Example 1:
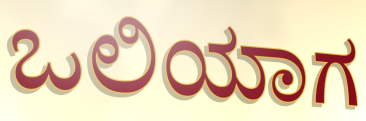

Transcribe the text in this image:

ಒಲಿಯಾಗ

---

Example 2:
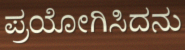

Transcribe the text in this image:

ಪ್ರಯೋಗಿಸಿದನು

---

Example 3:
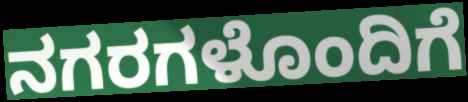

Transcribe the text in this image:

ನಗರಗಳೊಂದಿಗೆ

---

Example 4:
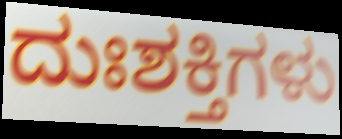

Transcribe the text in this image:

ದುಃಶಕ್ತಿಗಳು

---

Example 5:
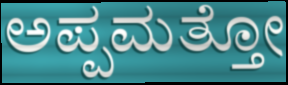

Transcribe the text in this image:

ಅಪ್ಪಮತ್ತೋ